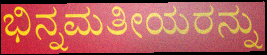
ಭಿನ್ನಮತೀಯರನ್ನು